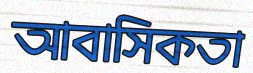
আবাসিকতা